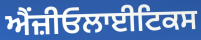
ਐਂਜ਼ੀਓਲਾਈਟਿਕਸ